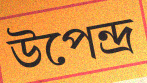
উপেন্দ্ৰ